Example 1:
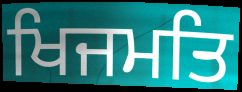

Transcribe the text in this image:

ਖਿਜਮਤਿ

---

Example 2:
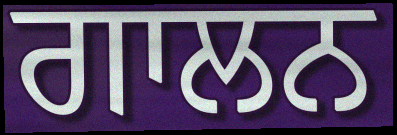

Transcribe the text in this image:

ਗਾਲਨ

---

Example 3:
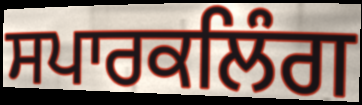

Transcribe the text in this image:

ਸਪਾਰਕਲਿੰਗ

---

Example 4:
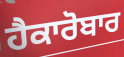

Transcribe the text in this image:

ਹੈਕਾਰੋਬਾਰ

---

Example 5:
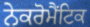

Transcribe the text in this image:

ਨੇਕਰੋਮੈਂਟਿਕ